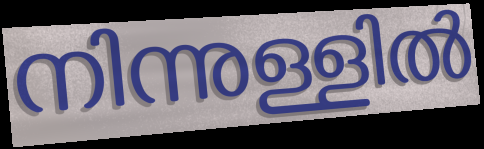
നിന്നുള്ളിൽ